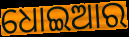
ଧୋଇଆର